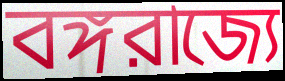
বঙ্গরাজ্যে